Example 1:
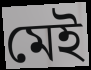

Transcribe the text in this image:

মেই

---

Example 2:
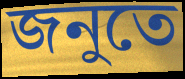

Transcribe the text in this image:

জনুতে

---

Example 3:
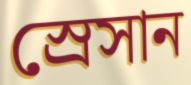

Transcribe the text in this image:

স্রেসান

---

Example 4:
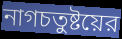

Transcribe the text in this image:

নাগচতুষ্টয়ের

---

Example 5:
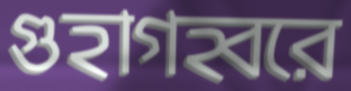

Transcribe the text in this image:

গুহাগহ্বরে